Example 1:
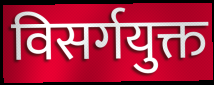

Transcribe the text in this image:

विसर्गयुक्त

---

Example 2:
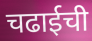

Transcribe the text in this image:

चढाईची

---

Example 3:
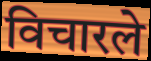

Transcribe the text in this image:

विचारले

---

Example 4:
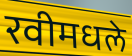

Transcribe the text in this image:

रवीमधले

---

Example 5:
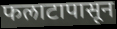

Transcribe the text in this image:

फलाटापासून